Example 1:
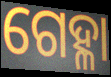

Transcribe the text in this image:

ଗେହ୍ଳା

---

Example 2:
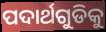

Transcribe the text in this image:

ପଦାର୍ଥଗୁଡିକୁ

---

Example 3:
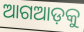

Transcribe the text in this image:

ଆଗଆଡ଼କୁ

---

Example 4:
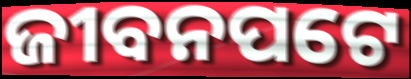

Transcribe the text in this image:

ଜୀବନପଟେ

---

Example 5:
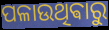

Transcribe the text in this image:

ପଳାଉଥିଵାରୁ